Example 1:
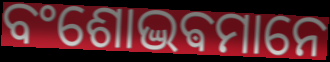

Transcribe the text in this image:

ବଂଶୋଦ୍ଭଵମାନେ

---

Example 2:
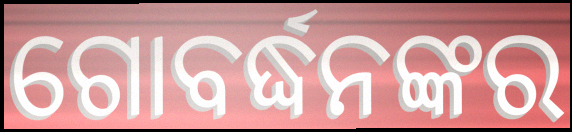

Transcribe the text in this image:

ଗୋବର୍ଦ୍ଧନଙ୍କର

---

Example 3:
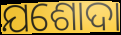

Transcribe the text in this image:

ଯଶୋଦା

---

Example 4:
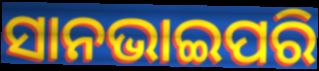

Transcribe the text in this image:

ସାନଭାଇପରି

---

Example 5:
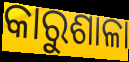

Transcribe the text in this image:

କାରୁଶାଳା